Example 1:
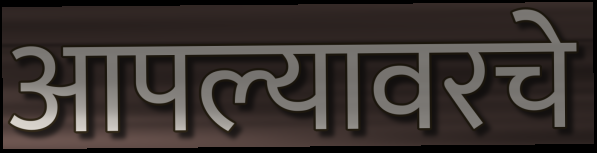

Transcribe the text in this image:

आपल्यावरचे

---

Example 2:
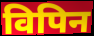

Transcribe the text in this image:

विपिन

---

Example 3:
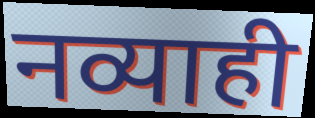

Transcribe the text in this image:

नव्याही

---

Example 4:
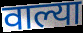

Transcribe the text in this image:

वाल्या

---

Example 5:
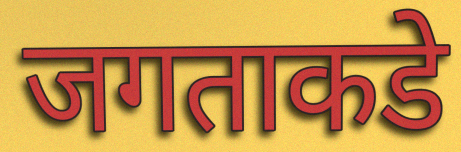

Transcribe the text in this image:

जगताकडे